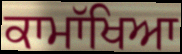
ਕਾਮਾੱਖਿਆ